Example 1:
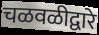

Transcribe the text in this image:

चळवळीद्वारे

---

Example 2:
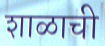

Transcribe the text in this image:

शाळाची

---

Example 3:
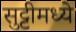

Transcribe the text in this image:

सुट्टीमध्ये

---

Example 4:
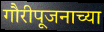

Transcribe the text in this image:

गौरीपूजनाच्या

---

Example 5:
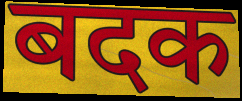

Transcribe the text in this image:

बदक